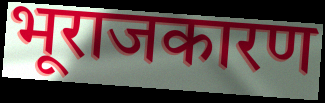
भूराजकारण